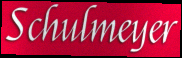
Schulmeyer